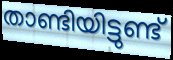
താണ്ടിയിട്ടുണ്ട്